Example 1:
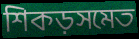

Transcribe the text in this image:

শিকড়সমেত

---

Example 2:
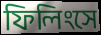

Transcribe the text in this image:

ফিলিংসে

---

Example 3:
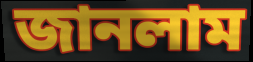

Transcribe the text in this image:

জানলাম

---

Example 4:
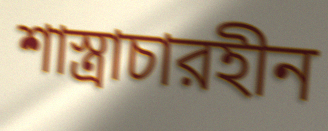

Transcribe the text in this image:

শাস্ত্রাচারহীন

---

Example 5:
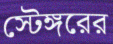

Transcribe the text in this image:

স্টেঙ্গরের